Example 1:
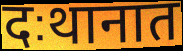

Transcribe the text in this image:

दःथानात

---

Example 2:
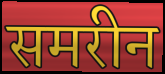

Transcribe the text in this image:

समरीन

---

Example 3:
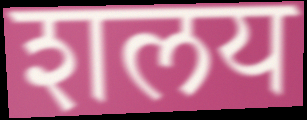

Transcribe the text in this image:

शलय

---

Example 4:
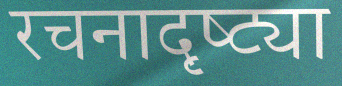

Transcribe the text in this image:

रचनादृष्ट्या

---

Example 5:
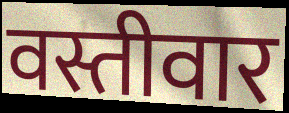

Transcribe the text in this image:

वस्तीवार